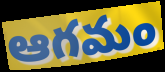
ఆగమం